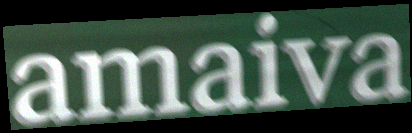
amaiva